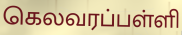
கெலவரப்பள்ளி